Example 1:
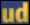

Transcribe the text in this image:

ud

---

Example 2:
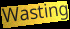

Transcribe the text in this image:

Wasting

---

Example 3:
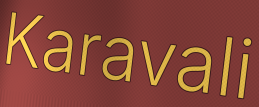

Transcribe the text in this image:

Karavali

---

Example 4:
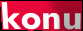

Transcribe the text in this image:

konu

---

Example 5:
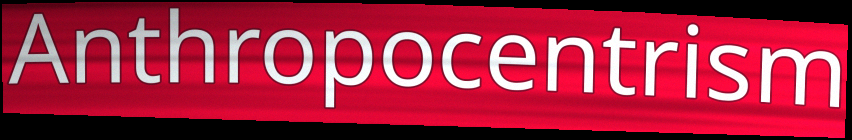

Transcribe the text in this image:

Anthropocentrism